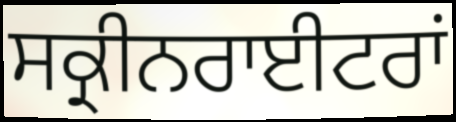
ਸਕ੍ਰੀਨਰਾਈਟਰਾਂ